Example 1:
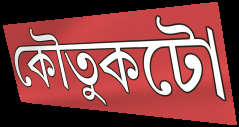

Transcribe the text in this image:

কৌতুকটো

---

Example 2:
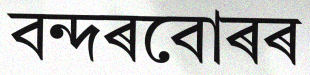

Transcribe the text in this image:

বন্দৰবোৰৰ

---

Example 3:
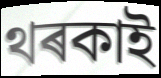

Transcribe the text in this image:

থৰকাই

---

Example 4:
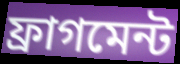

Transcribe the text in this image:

ফ্ৰাগমেন্ট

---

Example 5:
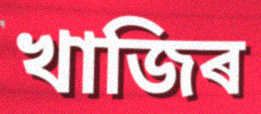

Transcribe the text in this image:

খাজিৰ